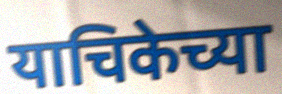
याचिकेच्या